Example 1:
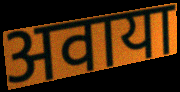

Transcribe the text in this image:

अवाया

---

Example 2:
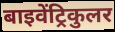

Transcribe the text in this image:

बाइवेंट्रिकुलर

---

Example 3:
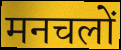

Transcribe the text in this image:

मनचलों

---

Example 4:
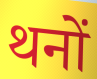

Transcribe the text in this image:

थनों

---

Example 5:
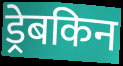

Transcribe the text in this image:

ड्रेबकिन